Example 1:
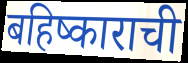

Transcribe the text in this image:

बहिष्काराची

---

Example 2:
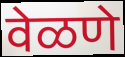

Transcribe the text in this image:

वेळणे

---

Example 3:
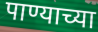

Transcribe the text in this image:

पाण्याच्या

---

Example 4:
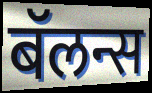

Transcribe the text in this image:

बॅलन्स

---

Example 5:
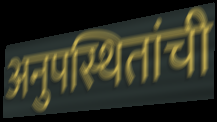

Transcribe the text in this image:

अनुपस्थितांची